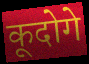
कूदोगे